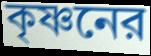
কৃষ্ণনের